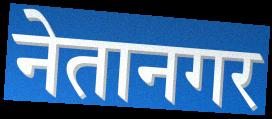
नेतानगर